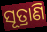
ସୂତ୍ରାଣି